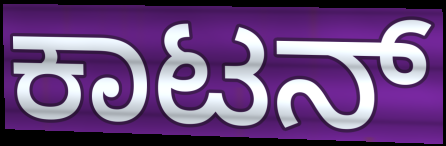
ಕಾಟನ್